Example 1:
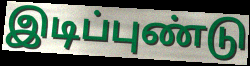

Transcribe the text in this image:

இடிப்புண்டு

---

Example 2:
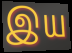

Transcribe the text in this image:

இய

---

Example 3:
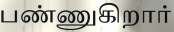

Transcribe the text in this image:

பண்ணுகிறார்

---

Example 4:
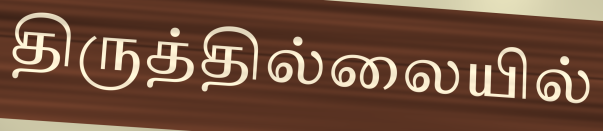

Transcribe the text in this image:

திருத்தில்லையில்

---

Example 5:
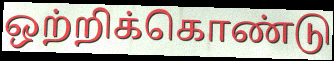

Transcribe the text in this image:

ஒற்றிக்கொண்டு